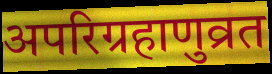
अपरिग्रहाणुव्रत